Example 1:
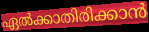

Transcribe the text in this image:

ഏൽക്കാതിരിക്കാൻ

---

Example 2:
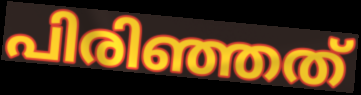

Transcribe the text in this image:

പിരിഞ്ഞത്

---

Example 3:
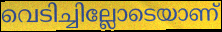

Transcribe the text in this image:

വെടിച്ചില്ലോടെയാണ്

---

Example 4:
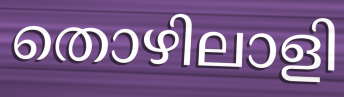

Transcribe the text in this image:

തൊഴിലാളി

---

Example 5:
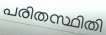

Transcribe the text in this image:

പരിതസ്ഥിതി